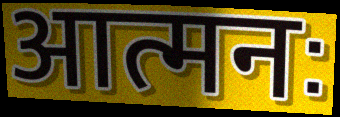
आत्मनः